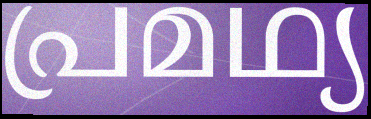
പ്രമഥ്യ